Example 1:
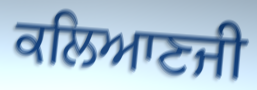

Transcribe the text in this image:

ਕਲਿਆਣਜੀ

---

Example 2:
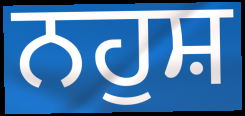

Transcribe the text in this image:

ਨਹੁਸ਼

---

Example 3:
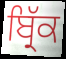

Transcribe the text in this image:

ਬ੍ਰਿੱਕ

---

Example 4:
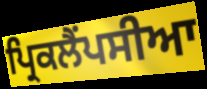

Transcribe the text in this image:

ਪ੍ਰਿਕਲੈਂਪਸੀਆ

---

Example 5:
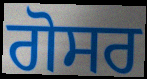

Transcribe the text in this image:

ਗੋਸਰ